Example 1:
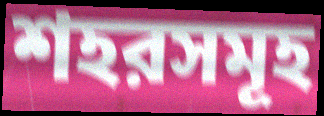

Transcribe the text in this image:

শহরসমূহ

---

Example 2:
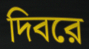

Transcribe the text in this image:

দিবরে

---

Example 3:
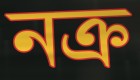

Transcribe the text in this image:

নক্র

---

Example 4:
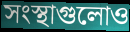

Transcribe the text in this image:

সংস্থাগুলোও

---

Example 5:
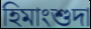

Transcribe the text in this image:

হিমাংশুদা